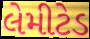
લેમીટેડ